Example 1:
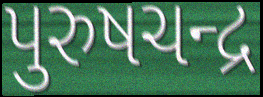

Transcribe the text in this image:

પુરુષચન્દ્ર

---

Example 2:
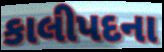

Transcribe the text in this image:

કાલીપદના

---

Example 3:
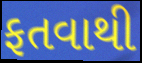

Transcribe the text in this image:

ફતવાથી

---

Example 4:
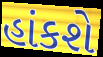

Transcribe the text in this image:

હાંકશે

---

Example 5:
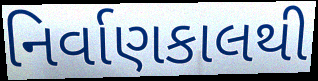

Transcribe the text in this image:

નિર્વાણકાલથી